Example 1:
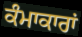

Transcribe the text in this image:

ਕੰਮਾਕਾਰਾਂ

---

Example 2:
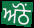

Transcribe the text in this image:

ਅੱਠੇਂ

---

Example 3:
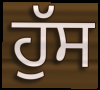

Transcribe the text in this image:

ਹੁੱਸ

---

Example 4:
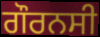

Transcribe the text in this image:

ਗੌਰਨਸੀ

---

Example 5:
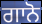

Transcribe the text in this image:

ਗਾਨੋ